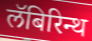
लॅबिरिन्थ